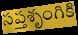
సప్తశృంగికి